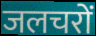
जलचरों